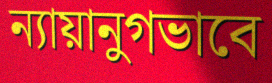
ন্যায়ানুগভাবে